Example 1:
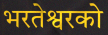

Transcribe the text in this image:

भरतेश्वरको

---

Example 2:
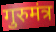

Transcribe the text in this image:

गुरुमंत्र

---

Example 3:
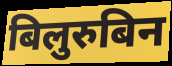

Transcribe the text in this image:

बिलुरुबिन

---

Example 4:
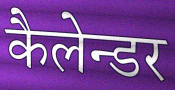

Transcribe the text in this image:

कैलेन्डर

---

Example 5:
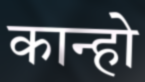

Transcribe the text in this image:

कान्हो